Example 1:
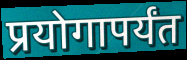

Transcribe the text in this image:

प्रयोगापर्यंत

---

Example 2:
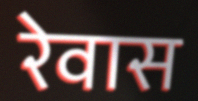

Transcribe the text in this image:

रेवास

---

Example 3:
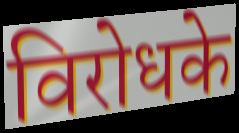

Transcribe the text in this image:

विरोधके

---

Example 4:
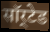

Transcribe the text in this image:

सॉर्टेड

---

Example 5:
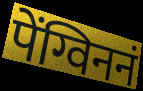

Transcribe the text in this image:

पेंग्विननं